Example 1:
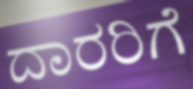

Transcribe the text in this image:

ದಾರರಿಗೆ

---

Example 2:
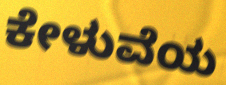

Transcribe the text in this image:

ಕೇಳುವೆಯ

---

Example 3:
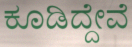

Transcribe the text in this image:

ಕೂಡಿದ್ದೇವೆ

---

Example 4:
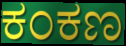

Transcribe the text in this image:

ಕಂಕಣ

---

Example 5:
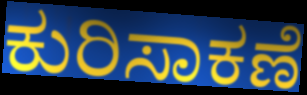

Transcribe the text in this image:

ಕುರಿಸಾಕಣೆ